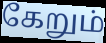
கேறும்